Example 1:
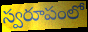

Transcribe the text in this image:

స్వరూపంలో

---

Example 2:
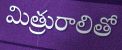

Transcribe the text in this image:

మిత్రురాలితో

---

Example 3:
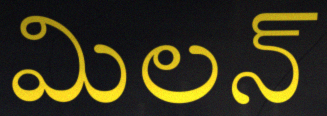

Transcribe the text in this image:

మిలన్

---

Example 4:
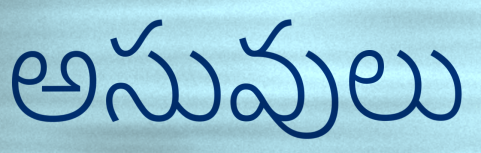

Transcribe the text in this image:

అసువులు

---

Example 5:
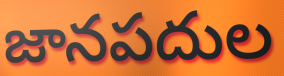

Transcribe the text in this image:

జానపదుల